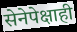
सेनेपेक्षाही